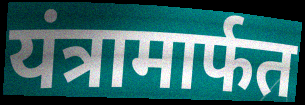
यंत्रामार्फत